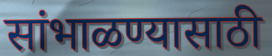
सांभाळण्यासाठी